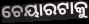
ଚେୟାରଟାକୁ